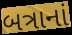
બત્રાનાં